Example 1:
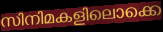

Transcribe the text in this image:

സിനിമകളിലൊക്കെ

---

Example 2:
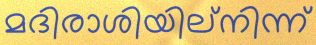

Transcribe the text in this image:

മദിരാശിയില്നിന്ന്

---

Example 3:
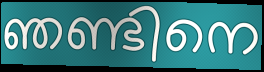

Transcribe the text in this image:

ഞണ്ടിനെ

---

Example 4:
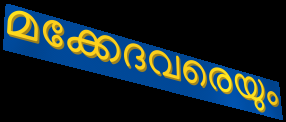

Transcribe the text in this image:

മക്കേദവരെയും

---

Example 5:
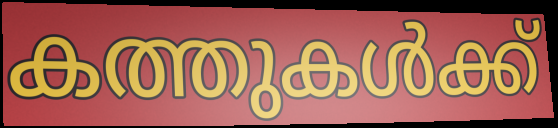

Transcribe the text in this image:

കത്തുകൾക്ക്